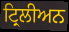
ਟ੍ਰਿਲੀਅਨ